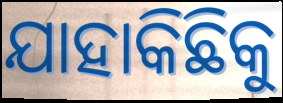
ଯାହାକିଛିକୁ